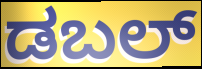
ಡಬಲ್